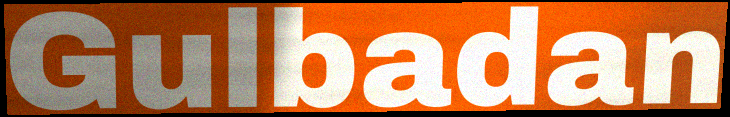
Gulbadan